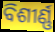
ବିଶୀର୍ଣ୍ଣ